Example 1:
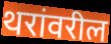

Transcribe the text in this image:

थरांवरील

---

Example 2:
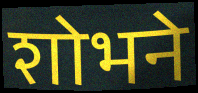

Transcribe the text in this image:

शोभने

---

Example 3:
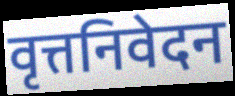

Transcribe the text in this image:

वृत्तनिवेदन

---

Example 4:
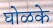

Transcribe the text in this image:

घोळके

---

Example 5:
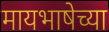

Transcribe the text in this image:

मायभाषेच्या